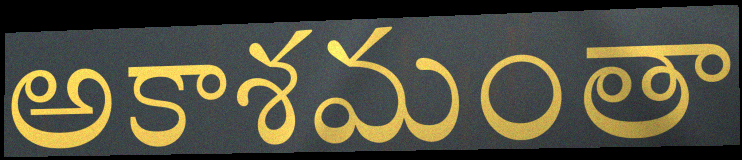
అకాశమంతా